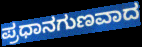
ಪ್ರಧಾನಗುಣವಾದ